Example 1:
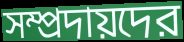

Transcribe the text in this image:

সম্প্রদায়দের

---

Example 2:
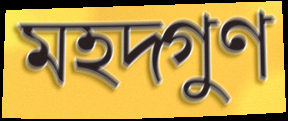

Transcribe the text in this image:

মহদ্গুণ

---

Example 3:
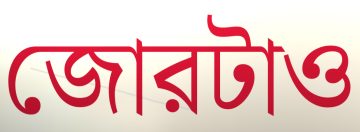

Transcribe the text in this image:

জোরটাও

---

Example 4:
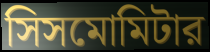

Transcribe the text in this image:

সিসমোমিটার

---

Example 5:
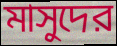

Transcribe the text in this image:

মাসুদের